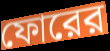
ফোরের